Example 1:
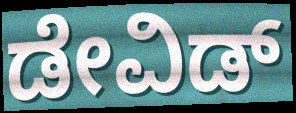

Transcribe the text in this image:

ಡೇವಿಡ್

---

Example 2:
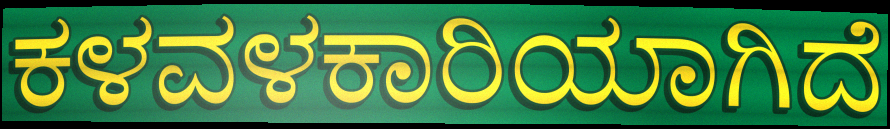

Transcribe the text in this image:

ಕಳವಳಕಾರಿಯಾಗಿದೆ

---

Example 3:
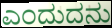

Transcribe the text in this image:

ಎಂದುದನು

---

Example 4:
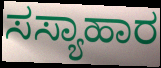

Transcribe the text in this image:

ಸಸ್ಯಾಹಾರ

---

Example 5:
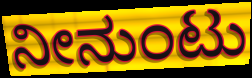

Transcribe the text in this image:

ನೀನುಂಟು